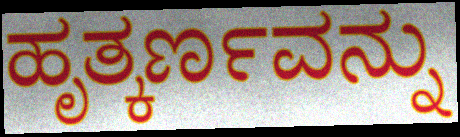
ಹೃತ್ಕರ್ಣವನ್ನು